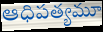
ఆధిపత్యమూ